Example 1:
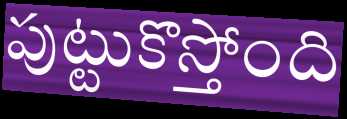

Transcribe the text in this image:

పుట్టుకొస్తోంది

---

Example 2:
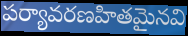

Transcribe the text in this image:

పర్యావరణహితమైనవి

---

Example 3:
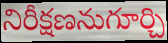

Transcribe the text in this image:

నిరీక్షణనుగూర్చి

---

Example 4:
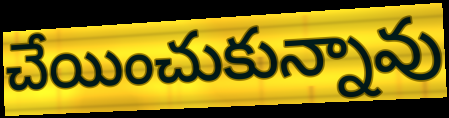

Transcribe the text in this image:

చేయించుకున్నావు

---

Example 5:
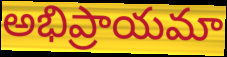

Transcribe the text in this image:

అభిప్రాయమా